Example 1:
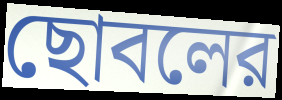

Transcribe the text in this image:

ছোবলের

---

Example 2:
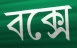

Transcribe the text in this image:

বক্সে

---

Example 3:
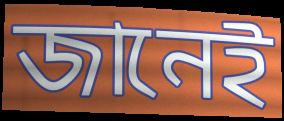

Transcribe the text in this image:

জানেই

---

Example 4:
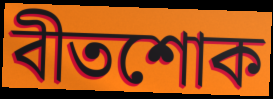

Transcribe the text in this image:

বীতশোক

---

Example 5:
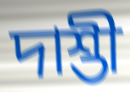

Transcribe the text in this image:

দাশ্তী